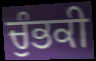
ਚੁੰਭਕੀ